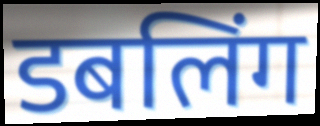
डबलिंग